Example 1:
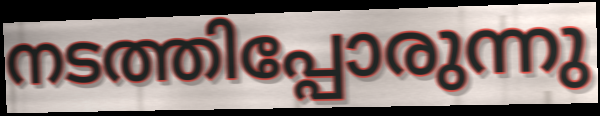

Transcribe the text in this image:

നടത്തിപ്പോരുന്നു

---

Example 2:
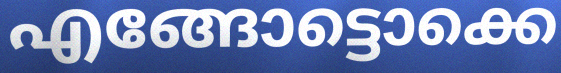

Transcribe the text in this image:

എങ്ങോട്ടൊക്കെ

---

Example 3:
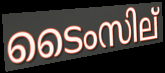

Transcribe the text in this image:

ടൈംസില്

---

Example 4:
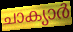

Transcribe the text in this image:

ചാക്യാർ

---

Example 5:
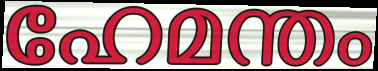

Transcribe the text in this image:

ഹേമന്തം